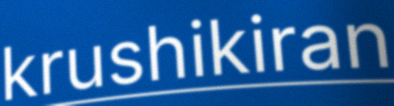
krushikiran